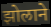
झोलाने